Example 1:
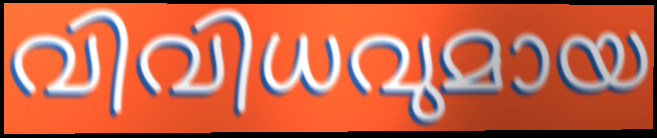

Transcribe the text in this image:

വിവിധവുമായ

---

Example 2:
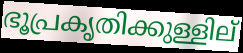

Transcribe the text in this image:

ഭൂപ്രകൃതിക്കുള്ളില്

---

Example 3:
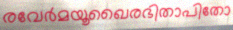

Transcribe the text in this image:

രവേർമയൂഖൈരഭിതാപിതോ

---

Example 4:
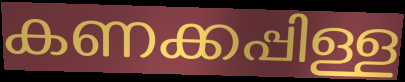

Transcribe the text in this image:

കണക്കപ്പിള്ള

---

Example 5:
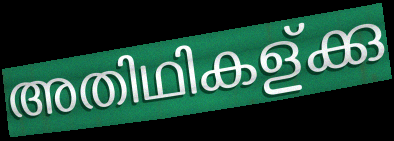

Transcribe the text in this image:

അതിഥികള്ക്കു